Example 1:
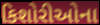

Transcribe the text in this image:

કિશોરીઓના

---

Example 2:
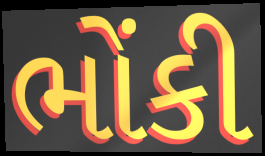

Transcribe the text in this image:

ભોંકી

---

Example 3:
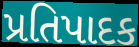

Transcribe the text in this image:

પ્રતિપાદક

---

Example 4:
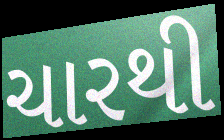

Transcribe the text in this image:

ચારથી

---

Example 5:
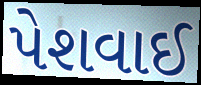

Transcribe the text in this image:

પેશવાઈ